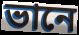
ভানে